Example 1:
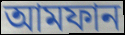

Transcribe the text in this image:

আমফান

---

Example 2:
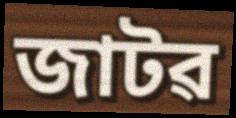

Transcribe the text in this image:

জাটৱ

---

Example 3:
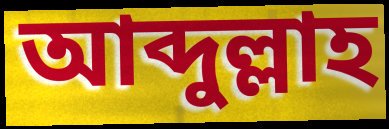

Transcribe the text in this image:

আব্দুল্লাহ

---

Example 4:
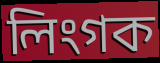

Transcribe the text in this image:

লিংগক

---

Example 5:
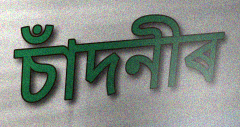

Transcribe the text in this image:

চাঁদনীৰ